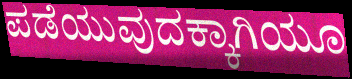
ಪಡೆಯುವುದಕ್ಕಾಗಿಯೂ